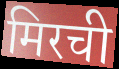
मिरची